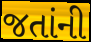
જતાંની